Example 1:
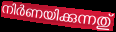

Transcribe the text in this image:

നിർണയിക്കുന്നതു്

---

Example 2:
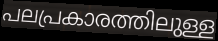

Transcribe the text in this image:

പലപ്രകാരത്തിലുള്ള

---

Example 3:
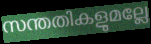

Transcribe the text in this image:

സന്തതികളുമല്ലേ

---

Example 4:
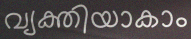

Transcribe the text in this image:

വ്യക്തിയാകാം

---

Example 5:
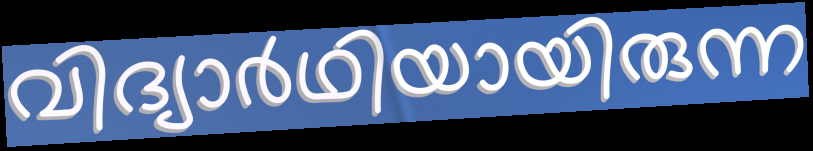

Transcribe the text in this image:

വിദ്യാർഥിയായിരുന്ന